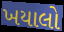
ખયાલો